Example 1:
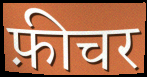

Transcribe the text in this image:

फ़ीचर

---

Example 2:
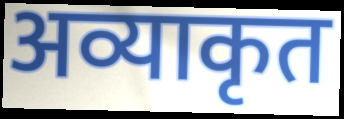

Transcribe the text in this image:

अव्याकृत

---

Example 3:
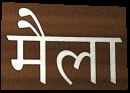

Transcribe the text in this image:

मैला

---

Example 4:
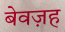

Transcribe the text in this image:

बेवज़ह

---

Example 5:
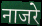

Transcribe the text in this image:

नाजरे